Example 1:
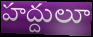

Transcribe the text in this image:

హద్దులూ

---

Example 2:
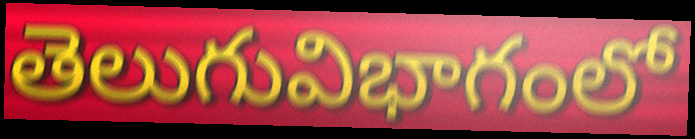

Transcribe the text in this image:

తెలుగువిభాగంలో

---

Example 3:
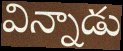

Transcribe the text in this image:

విన్నాడు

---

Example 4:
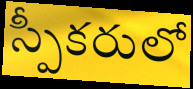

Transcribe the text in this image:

స్పీకరులో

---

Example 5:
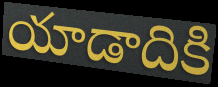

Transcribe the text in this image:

యాడాదికి